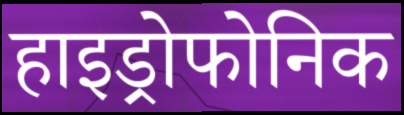
हाइड्रोफोनिक